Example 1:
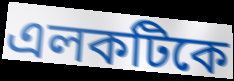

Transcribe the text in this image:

এলকটিকে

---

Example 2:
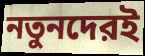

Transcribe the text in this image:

নতুনদেরই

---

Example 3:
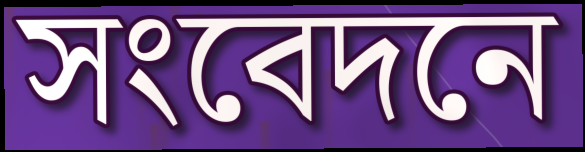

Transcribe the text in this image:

সংবেদনে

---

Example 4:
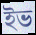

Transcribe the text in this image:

ইভ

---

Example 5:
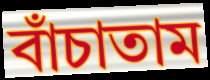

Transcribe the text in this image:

বাঁচাতাম